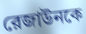
রেজাউনকে